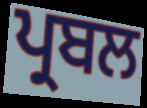
ਪ੍ਰਬਲ